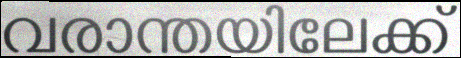
വരാന്തയിലേക്ക്